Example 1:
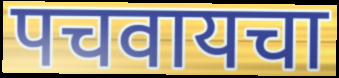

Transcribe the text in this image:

पचवायचा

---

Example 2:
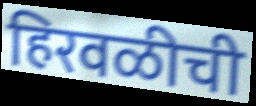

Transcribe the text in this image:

हिरवळीची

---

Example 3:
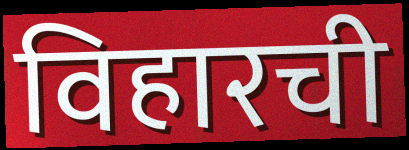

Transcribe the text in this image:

विहारची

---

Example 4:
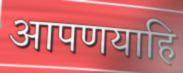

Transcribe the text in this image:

आपणयाहि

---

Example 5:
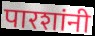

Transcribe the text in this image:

पारशांनी